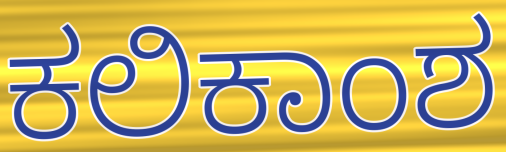
ಕಲಿಕಾಂಶ